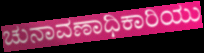
ಚುನಾವಣಾಧಿಕಾರಿಯು